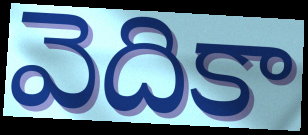
వెదికా